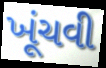
ખૂંચવી